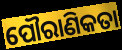
ପୌରାଣିକତା